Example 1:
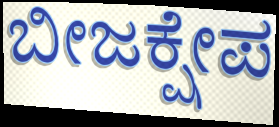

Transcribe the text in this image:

ಬೀಜಕ್ಷೇಪ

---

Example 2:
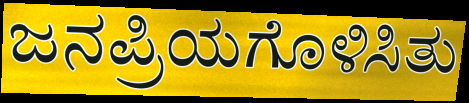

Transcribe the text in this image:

ಜನಪ್ರಿಯಗೊಳಿಸಿತು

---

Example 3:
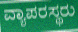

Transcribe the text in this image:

ವ್ಯಾಪರಸ್ಥರು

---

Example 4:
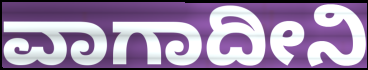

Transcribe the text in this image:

ವಾಗಾದೀನಿ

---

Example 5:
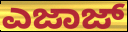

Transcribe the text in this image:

ಎಜಾಜ್